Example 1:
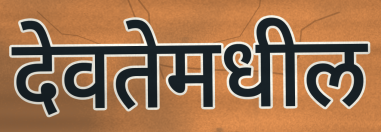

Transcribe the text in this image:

देवतेमधील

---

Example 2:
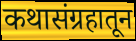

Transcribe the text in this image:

कथासंग्रहातून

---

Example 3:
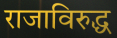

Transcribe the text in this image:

राजाविरुद्ध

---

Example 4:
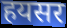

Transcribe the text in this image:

हयसर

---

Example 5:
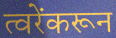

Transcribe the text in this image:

त्वरेंकरून